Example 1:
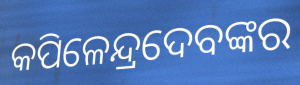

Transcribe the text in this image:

କପିଳେନ୍ଦ୍ରଦେବଙ୍କର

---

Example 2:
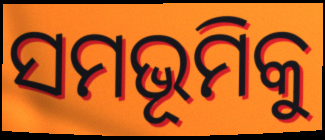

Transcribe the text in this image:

ସମଭୂମିକୁ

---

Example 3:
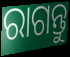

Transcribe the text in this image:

ରାଗନ୍ତୁ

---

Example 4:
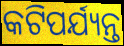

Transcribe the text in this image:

କଟିପର୍ଯ୍ୟନ୍ତ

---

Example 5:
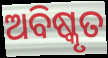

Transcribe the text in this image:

ଅବିଷ୍କୃତ